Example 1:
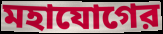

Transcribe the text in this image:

মহাযোগের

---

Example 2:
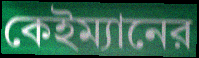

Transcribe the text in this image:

কেইম্যানের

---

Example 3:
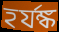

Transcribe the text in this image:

হর্যঙ্ক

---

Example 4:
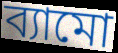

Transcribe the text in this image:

ব্যামো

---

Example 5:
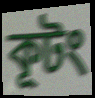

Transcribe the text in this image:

কূটং